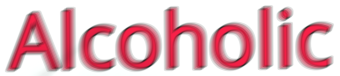
Alcoholic